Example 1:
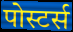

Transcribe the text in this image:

पोस्टर्स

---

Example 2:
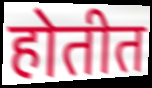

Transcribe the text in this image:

होतीत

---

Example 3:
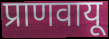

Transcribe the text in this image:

प्राणवायू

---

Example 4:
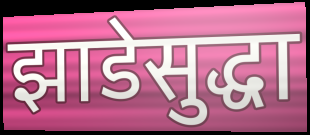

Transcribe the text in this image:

झाडेसुद्धा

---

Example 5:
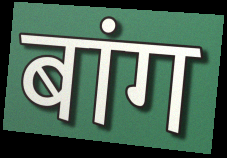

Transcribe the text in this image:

बांग